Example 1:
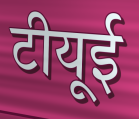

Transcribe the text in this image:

टीयूई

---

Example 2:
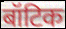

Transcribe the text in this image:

बॉटिक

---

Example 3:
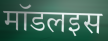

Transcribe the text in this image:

मॉडलइस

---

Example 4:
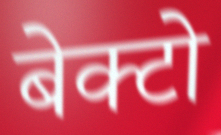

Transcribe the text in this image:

बेक्टो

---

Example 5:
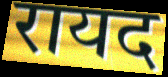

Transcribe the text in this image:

रायद